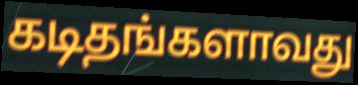
கடிதங்களாவது